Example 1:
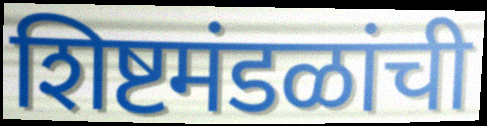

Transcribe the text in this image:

शिष्टमंडळांची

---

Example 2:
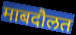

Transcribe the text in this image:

माबदौलत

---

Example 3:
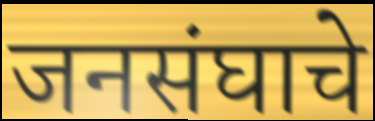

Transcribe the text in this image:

जनसंघाचे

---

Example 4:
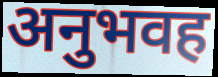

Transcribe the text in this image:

अनुभवह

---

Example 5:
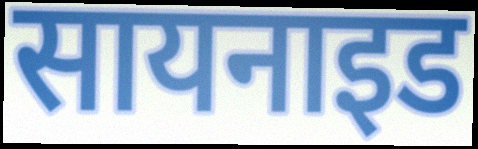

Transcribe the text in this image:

सायनाइड